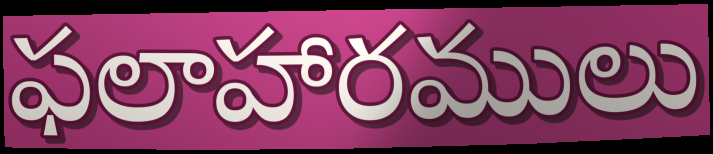
ఫలాహారములు